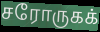
சரோருகக்